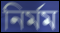
নির্মম